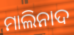
ମାଲିନାଦ